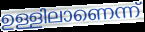
ഉള്ളിലാണെന്ന്